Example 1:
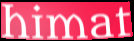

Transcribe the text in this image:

himat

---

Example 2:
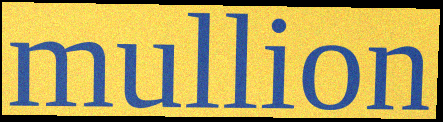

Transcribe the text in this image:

mullion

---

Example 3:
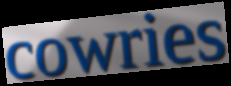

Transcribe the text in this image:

cowries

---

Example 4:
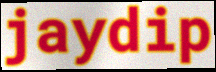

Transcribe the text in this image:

jaydip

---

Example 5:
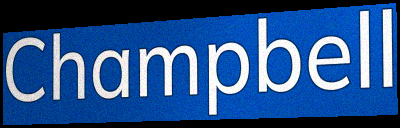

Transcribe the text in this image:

Champbell